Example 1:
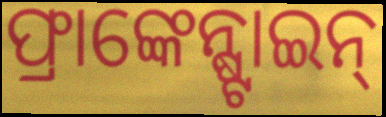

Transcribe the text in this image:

ଫ୍ରାଙ୍କେନ୍ଷ୍ଟାଇନ୍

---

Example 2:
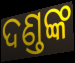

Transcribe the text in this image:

ଦଣ୍ଡଙ୍କ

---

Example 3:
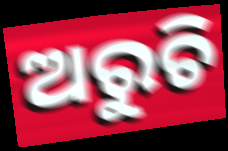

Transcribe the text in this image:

ଅରୁଚି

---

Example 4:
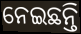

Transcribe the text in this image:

ନେଇଛନ୍ତି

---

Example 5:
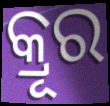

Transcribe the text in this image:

କ୍ରୂର